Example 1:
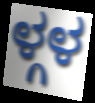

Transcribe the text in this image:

ಳ್ಗಳ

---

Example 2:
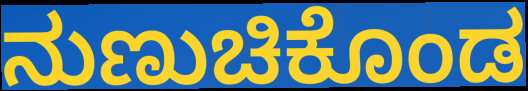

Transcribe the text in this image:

ನುಣುಚಿಕೊಂಡ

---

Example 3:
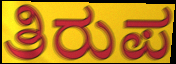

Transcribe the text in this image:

ತಿರುಪ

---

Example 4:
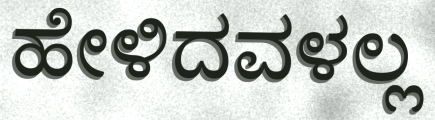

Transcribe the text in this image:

ಹೇಳಿದವಳಲ್ಲ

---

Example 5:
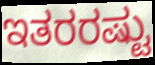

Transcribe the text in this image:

ಇತರರಷ್ಟು